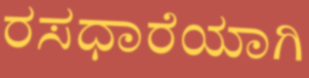
ರಸಧಾರೆಯಾಗಿ